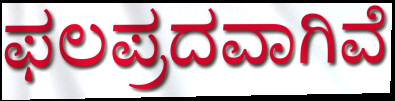
ಫಲಪ್ರದವಾಗಿವೆ